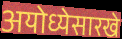
अयोध्येसारखे